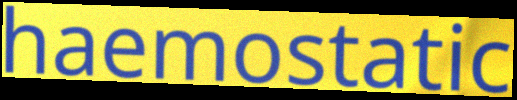
haemostatic